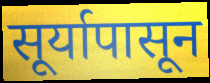
सूर्यापासून